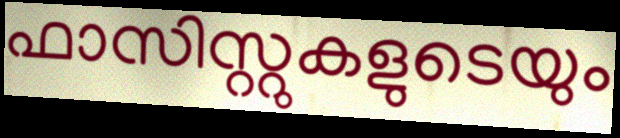
ഫാസിസ്റ്റുകളുടെയും